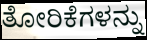
ತೋರಿಕೆಗಳನ್ನು